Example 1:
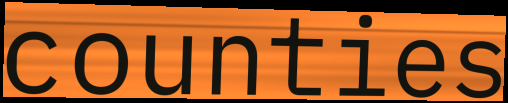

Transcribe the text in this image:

counties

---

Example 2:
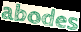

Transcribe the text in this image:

abodes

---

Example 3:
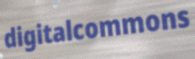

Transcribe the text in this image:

digitalcommons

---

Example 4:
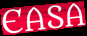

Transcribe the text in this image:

EASA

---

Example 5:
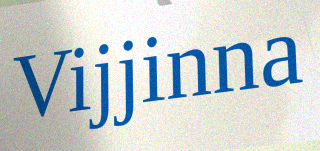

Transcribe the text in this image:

Vijjinna